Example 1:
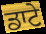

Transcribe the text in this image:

ਡਾਟੇ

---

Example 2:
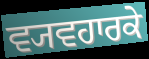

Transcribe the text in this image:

ਵ੍ਯਵਹਾਰਕੇ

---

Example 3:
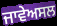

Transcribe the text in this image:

ਜਾਵੇਅਸਲ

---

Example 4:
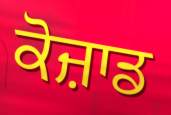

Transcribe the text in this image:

ਕੋਜ਼ਾਡ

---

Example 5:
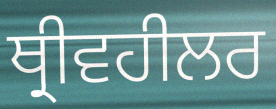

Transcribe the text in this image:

ਥ੍ਰੀਵਹੀਲਰ